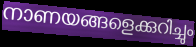
നാണയങ്ങളെക്കുറിച്ചും